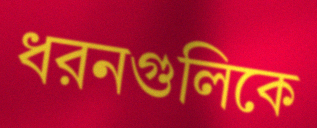
ধরনগুলিকে